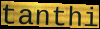
tanthi